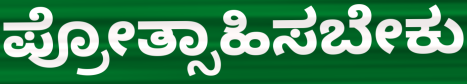
ಪ್ರೋತ್ಸಾಹಿಸಬೇಕು